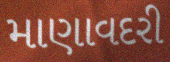
માણાવદરી